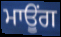
ਮਾਊਂਗ